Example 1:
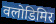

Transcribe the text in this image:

वलोडिमिर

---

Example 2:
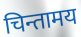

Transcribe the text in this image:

चिन्तामय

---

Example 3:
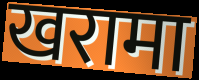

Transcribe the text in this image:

खरामा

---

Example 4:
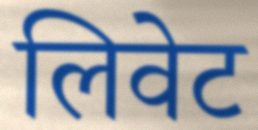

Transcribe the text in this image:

लिवेट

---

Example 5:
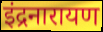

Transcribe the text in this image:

इंद्रनारायण